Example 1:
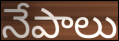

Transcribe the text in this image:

నేపాలు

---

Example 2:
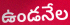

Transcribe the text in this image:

ఉండనేల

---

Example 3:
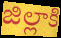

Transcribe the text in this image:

జిల్లాకి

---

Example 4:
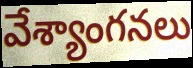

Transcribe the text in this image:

వేశ్యాంగనలు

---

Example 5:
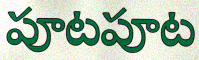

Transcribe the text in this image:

పూటపూట